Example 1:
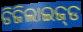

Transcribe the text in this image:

ଡିଜିଲାଇଜ୍‌ଡ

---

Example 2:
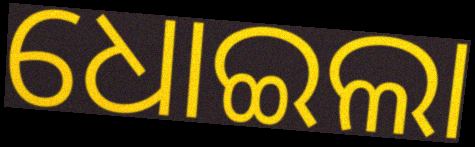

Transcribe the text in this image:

ଧୋଇଲା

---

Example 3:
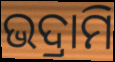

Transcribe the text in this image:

ଭଦ୍ରାମି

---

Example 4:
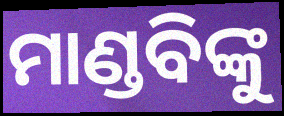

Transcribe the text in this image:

ମାଣ୍ଡବିଙ୍କୁ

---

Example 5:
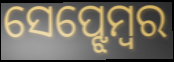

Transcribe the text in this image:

ସେପ୍ଝେମ୍ବର